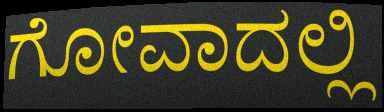
ಗೋವಾದಲ್ಲಿ